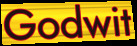
Godwit